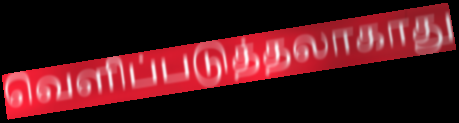
வெளிப்படுத்தலாகாது